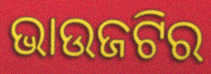
ଭାଉଜଟିର